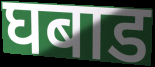
घबाड